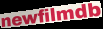
newfilmdb